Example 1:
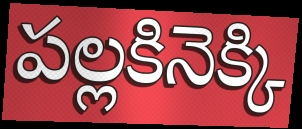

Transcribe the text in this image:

పల్లకినెక్కి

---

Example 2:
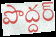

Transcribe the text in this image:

పొద్దర్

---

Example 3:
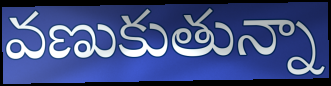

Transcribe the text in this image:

వణుకుతున్నా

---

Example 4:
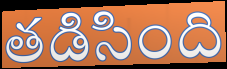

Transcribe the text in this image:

తడిసింది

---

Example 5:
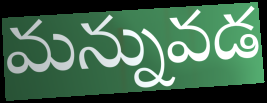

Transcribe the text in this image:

మన్నువడ